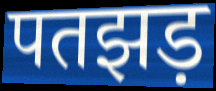
पतझड़